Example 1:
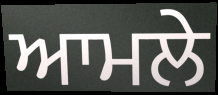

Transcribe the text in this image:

ਆਮਲੇ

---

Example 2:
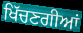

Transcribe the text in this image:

ਖਿੱਚਣਗੀਆਂ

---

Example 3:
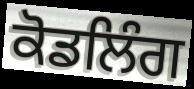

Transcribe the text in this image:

ਕੋਡਲਿੰਗ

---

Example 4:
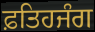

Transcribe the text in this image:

ਫ਼ਤਿਹਜੰਗ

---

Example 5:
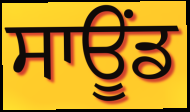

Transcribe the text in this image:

ਸਾਊਂਡ